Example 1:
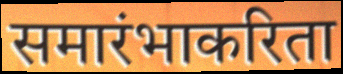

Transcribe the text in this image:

समारंभाकरिता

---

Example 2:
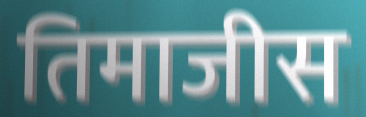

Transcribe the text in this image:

तिमाजीस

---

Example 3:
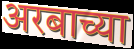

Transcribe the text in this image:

अरबाच्या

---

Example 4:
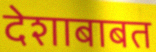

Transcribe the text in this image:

देशाबाबत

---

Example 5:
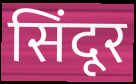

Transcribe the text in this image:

सिंदूर